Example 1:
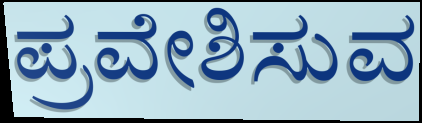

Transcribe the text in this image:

ಪ್ರವೇಶಿಸುವ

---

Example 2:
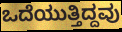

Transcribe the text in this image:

ಒದೆಯುತ್ತಿದ್ದವು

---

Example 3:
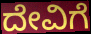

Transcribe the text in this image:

ದೇವಿಗೆ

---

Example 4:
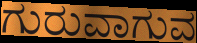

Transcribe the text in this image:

ಗುರುವಾಗುವ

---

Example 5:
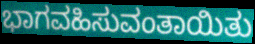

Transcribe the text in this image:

ಭಾಗವಹಿಸುವಂತಾಯಿತು